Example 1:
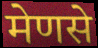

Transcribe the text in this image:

मेणसे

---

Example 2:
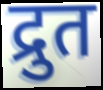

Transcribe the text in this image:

द्रुत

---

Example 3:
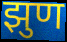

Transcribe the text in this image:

झुण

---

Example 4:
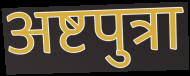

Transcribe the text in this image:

अष्टपुत्रा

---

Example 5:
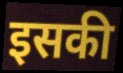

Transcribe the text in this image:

इसकी